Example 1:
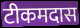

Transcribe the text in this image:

टीकमदास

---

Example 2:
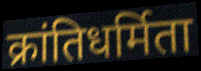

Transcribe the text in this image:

क्रांतिधर्मिता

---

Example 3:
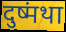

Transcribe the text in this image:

दुष्मंथा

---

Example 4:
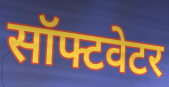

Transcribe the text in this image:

सॉफ्टवेटर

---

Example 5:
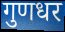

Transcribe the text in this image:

गुणधर